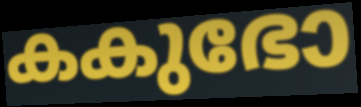
കകുഭോ